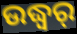
ଉଦ୍ଧ୍ୱର୍